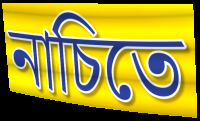
নাচিতে